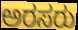
ಅರಸರು